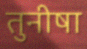
तुनीषा